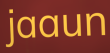
jaaun